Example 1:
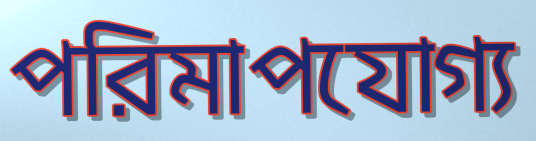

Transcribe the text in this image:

পরিমাপযোগ্য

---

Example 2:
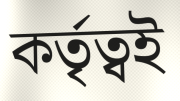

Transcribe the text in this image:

কর্তৃত্বই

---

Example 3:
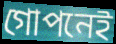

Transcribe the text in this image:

গোপনেই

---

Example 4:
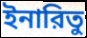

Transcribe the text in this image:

ইনারিতু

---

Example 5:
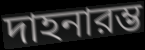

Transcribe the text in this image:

দাহনারম্ভ